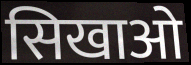
सिखाओ